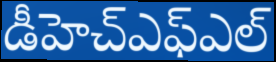
డీహెచ్ఎఫ్ఎల్